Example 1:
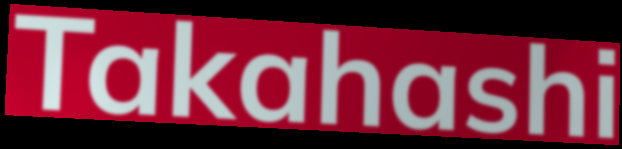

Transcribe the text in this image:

Takahashi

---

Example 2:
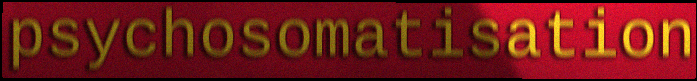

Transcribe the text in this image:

psychosomatisation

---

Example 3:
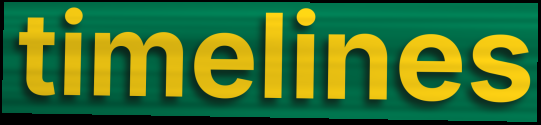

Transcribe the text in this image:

timelines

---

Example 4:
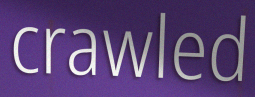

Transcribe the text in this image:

crawled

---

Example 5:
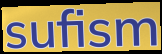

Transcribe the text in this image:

sufism